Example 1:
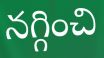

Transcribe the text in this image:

నగ్గించి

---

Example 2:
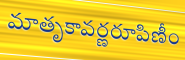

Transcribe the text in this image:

మాతృకావర్ణరూపిణీం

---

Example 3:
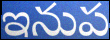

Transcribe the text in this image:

ఇనుప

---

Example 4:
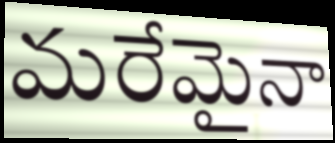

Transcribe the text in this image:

మరేమైనా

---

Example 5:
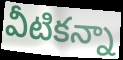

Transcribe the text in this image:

వీటికన్నా